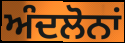
ਅੰਦਲੋਨਾਂ